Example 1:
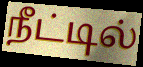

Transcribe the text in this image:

நீட்டில்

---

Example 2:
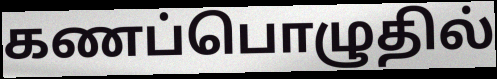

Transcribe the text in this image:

கணப்பொழுதில்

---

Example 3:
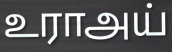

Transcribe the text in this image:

உராஅய்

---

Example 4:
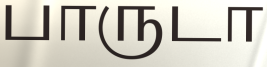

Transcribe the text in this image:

பாருடா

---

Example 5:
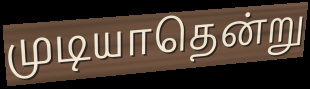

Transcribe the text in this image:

முடியாதென்று